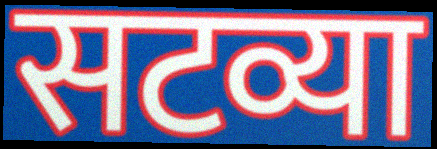
सटव्या